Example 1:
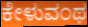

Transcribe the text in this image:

ಕೇಳುವಂಥ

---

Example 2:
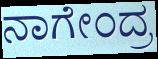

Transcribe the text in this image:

ನಾಗೇಂದ್ರ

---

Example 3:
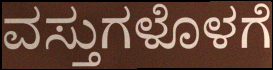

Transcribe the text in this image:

ವಸ್ತುಗಳೊಳಗೆ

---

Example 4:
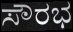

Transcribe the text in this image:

ಸೌರಭ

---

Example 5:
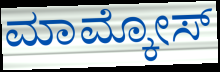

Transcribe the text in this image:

ಮಾಮ್ಕೋಸ್